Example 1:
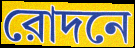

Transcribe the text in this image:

রোদনে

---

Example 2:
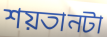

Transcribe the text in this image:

শয়তানটা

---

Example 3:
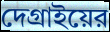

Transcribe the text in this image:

দেগ্রাইয়ের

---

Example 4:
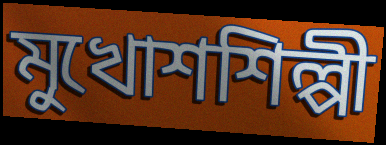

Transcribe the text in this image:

মুখোশশিল্পী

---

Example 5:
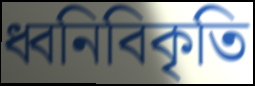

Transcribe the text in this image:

ধ্বনিবিকৃতি